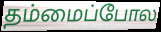
தம்மைப்போல